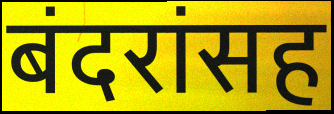
बंदरांसह